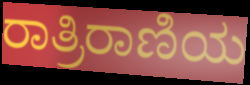
ರಾತ್ರಿರಾಣಿಯ